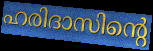
ഹരിദാസിന്റെ